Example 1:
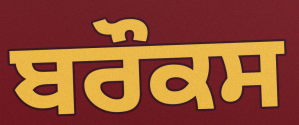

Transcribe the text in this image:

ਬਰੌਕਸ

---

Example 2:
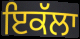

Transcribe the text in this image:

ਇਕੱਲਾ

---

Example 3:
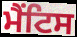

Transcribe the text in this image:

ਮੈਂਟਿਸ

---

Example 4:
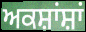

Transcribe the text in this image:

ਅਕਸ਼ਾਂਸ਼ਾਂ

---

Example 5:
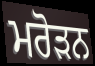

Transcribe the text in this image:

ਮਰੋੜਨ